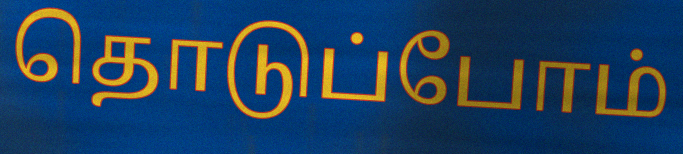
தொடுப்போம்